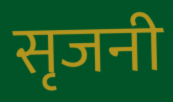
सृजनी